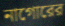
নাগোরের